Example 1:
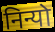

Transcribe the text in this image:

निन्यो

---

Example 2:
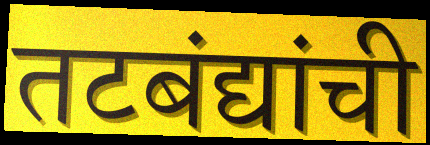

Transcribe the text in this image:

तटबंद्यांची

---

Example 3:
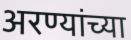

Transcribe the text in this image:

अरण्यांच्या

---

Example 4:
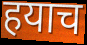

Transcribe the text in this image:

हयाच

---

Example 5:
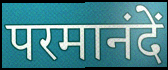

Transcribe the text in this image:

परमानंदें